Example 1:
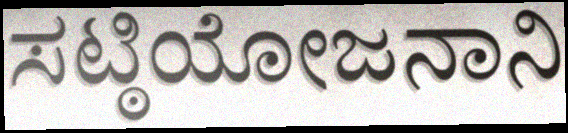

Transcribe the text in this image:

ಸಟ್ಠಿಯೋಜನಾನಿ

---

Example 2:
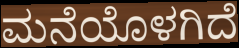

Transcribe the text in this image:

ಮನೆಯೊಳಗಿದೆ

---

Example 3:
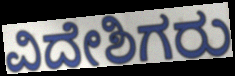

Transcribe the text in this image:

ವಿದೇಶಿಗರು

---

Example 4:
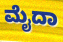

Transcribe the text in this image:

ಮೈದಾ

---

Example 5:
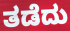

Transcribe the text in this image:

ತಡೆದು